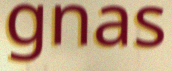
gnas